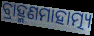
ବ୍ରାହ୍ମଣମାହାତ୍ମ୍ୟ